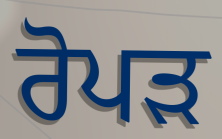
ਰੋਪਡ਼